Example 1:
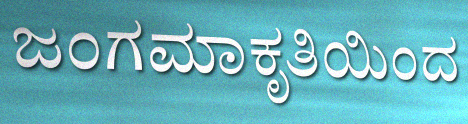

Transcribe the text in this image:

ಜಂಗಮಾಕೃತಿಯಿಂದ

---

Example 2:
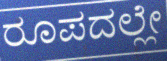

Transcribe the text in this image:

ರೂಪದಲ್ಲೇ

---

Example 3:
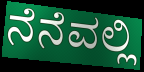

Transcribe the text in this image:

ನೆನೆವಲ್ಲಿ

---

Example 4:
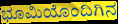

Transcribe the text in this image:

ಭೂಮಿಯೊಂದಿಗಿನ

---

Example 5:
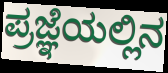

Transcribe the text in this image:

ಪ್ರಜ್ಞೆಯಲ್ಲಿನ